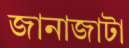
জানাজাটা